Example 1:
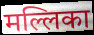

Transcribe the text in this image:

मल्लिका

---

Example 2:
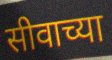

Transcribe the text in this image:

सीवाच्या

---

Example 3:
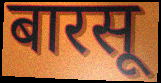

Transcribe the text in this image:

बारसू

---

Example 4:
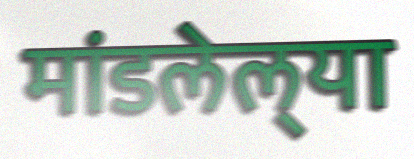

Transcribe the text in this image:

मांडलेल्या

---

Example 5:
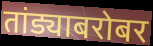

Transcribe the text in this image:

तांड्याबरोबर